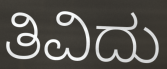
ತಿವಿದು